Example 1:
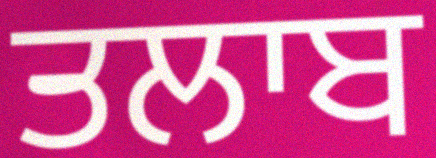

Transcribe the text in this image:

ਤਲਾਬ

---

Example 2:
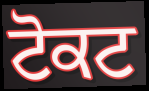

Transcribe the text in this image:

ਟੋਕਟ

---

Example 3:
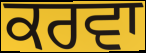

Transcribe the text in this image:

ਕਰਵਾ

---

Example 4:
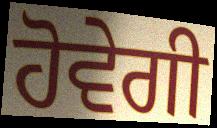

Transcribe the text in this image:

ਹੋਵੇਗੀ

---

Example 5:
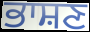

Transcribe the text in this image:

ਭਾਸ਼ਣ